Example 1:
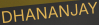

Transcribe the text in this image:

DHANANJAY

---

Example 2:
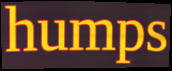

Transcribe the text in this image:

humps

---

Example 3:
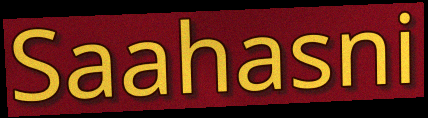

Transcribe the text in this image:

Saahasni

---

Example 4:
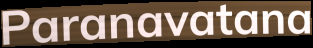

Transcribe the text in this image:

Paranavatana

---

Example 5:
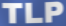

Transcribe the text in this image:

TLP